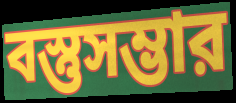
বস্তুসম্ভার